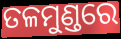
ତଳମୁଣ୍ଡରେ